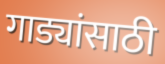
गाड्यांसाठी